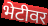
भेटीवर